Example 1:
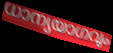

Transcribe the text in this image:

ധാന്യയാഗവും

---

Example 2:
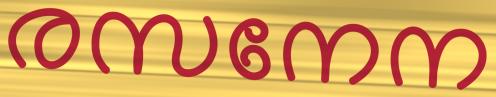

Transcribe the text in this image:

രസനേന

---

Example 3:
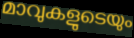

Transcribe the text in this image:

മാവുകളുടെയും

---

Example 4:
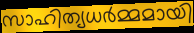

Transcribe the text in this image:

സാഹിത്യധർമ്മമായി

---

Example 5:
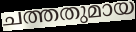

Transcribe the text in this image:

ചത്തതുമായ